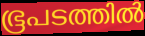
ഭൂപടത്തിൽ